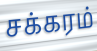
சக்கரம்